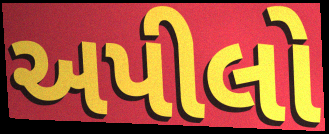
અપીલો